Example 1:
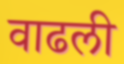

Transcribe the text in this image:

वाढली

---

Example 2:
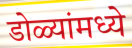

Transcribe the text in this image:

डोळ्यांमध्ये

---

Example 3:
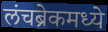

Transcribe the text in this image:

लंचब्रेकमध्ये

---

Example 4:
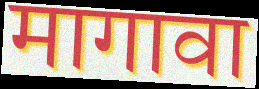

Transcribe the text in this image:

मागावा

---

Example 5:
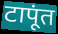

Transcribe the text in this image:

टापूंत